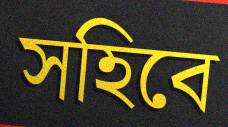
সহিবে